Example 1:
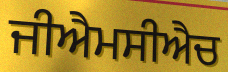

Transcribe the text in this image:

ਜੀਐਮਸੀਐਚ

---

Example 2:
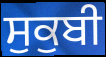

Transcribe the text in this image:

ਸੁਕੁਬੀ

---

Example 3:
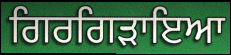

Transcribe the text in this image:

ਗਿਰਗਿੜਾਇਆ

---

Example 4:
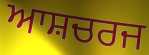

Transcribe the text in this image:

ਆਸ਼ਚਰਜ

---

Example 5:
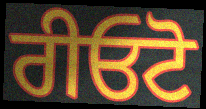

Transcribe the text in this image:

ਰੀਓਟੋ